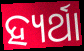
ହ୍ୟର୍ଥା